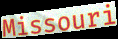
Missouri